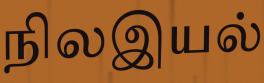
நிலஇயல்